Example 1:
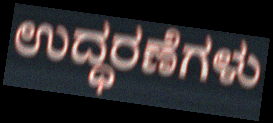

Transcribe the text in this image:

ಉದ್ಧರಣೆಗಳು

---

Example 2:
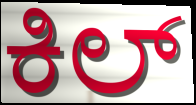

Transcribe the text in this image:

ಕಿಲ್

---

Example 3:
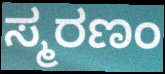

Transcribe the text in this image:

ಸ್ಮರಣಂ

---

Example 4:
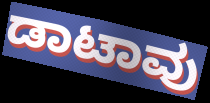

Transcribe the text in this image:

ಡಾಟಾವು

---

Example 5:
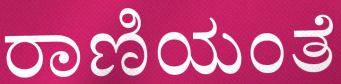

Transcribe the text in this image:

ರಾಣಿಯಂತೆ